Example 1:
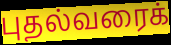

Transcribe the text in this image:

புதல்வரைக்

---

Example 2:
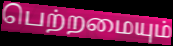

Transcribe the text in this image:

பெற்றமையும்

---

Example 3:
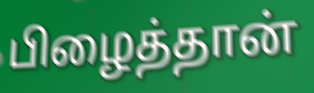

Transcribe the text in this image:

பிழைத்தான்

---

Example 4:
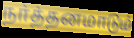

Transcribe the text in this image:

நர்த்தனமாடும்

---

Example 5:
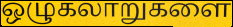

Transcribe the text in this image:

ஒழுகலாறுகளை